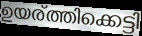
ഉയര്ത്തിക്കെട്ടി